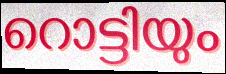
റൊട്ടിയും